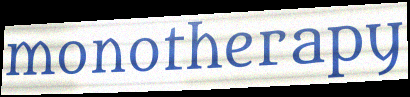
monotherapy